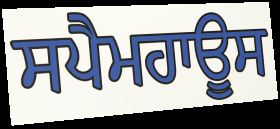
ਸਪੈਮਹਾਊਸ